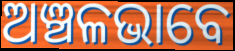
ଅଞ୍ଚଳଭାବେ